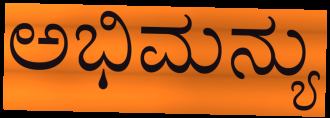
ಅಭಿಮನ್ಯು